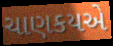
ચાણકયએ